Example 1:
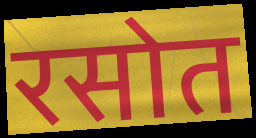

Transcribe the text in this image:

रसोत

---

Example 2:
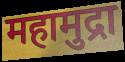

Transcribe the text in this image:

महामुद्रा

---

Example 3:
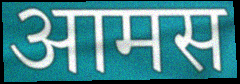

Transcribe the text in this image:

आमस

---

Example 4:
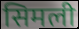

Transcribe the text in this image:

सिमली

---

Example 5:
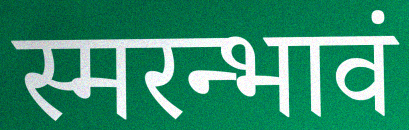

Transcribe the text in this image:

स्मरन्भावं